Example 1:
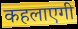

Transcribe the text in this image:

कहलाएगी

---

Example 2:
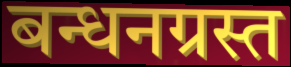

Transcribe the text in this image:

बन्धनग्रस्त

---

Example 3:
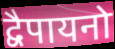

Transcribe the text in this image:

द्वैपायनो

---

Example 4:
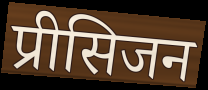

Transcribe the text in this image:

प्रीसिजन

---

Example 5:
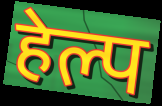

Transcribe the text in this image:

हेल्‍प